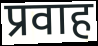
प्रवाह